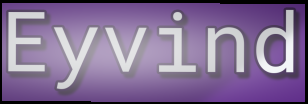
Eyvind